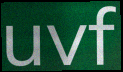
uvf